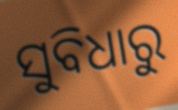
ସୁବିଧାରୁ